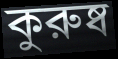
কুরুষ্ব